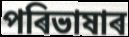
পৰিভাষাৰ